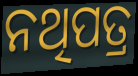
ନଥିପତ୍ର